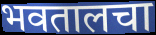
भवतालचा